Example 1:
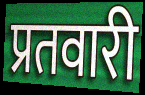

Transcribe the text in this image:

प्रतवारी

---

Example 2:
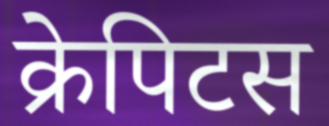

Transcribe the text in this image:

क्रेपिटस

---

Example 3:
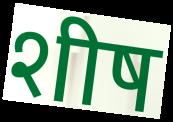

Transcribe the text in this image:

शीष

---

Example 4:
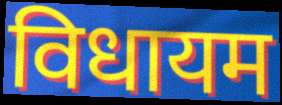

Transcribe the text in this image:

विधायम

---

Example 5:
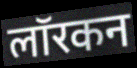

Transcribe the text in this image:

लॉरकन